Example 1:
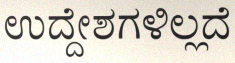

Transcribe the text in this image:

ಉದ್ದೇಶಗಳಿಲ್ಲದೆ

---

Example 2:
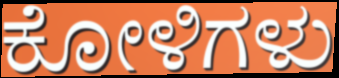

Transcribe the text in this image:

ಕೋಳಿಗಳು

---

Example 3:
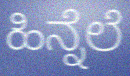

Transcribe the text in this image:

ಹಿನ್ನೆಲೆ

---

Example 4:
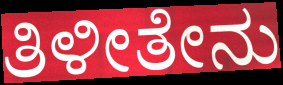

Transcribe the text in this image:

ತಿಳೀತೇನು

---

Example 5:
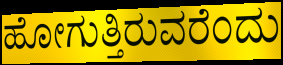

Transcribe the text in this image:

ಹೋಗುತ್ತಿರುವರೆಂದು